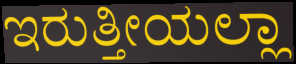
ಇರುತ್ತೀಯಲ್ಲಾ